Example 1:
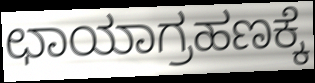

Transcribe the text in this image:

ಛಾಯಾಗ್ರಹಣಕ್ಕೆ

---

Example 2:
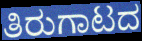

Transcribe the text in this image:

ತಿರುಗಾಟದ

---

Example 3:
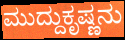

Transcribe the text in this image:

ಮುದ್ದುಕೃಷ್ಣನು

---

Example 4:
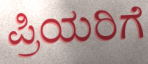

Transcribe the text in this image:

ಪ್ರಿಯರಿಗೆ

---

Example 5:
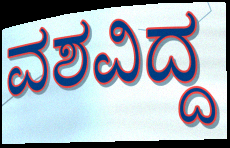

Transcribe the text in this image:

ವಶವಿದ್ದ